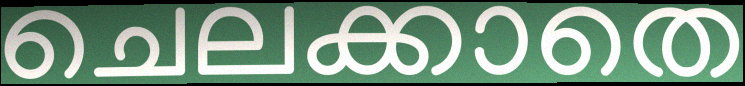
ചെലക്കാതെ